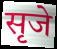
सृजे